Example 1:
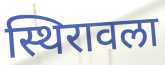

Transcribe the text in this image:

स्थिरावला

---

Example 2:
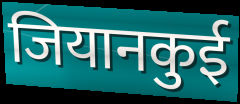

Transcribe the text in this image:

जियानकुई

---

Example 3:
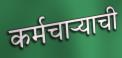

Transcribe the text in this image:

कर्मचाऱ्याची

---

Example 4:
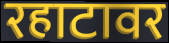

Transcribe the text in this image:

रहाटावर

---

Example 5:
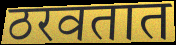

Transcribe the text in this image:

ठरवतात